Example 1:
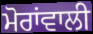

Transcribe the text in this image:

ਮੋਰਾਂਵਾਲੀ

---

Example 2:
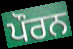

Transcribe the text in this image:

ਪੌਰਨ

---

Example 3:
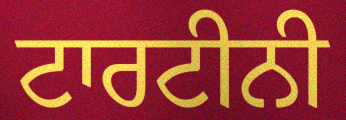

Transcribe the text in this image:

ਟਾਰਟੀਨੀ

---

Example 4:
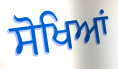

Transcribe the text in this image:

ਸੋਖਿਆਂ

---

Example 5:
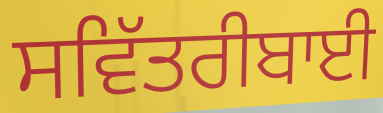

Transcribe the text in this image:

ਸਵਿੱਤਰੀਬਾਈ